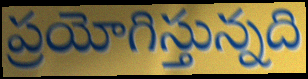
ప్రయోగిస్తున్నది